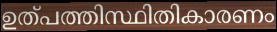
ഉത്പത്തിസ്ഥിതികാരണം